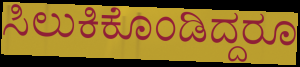
ಸಿಲುಕಿಕೊಂಡಿದ್ದರೂ